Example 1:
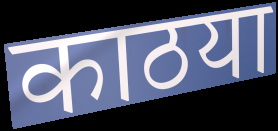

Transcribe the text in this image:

काठया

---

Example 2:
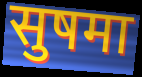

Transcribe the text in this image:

सुषमा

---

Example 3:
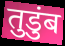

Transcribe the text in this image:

तुडुंब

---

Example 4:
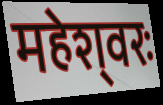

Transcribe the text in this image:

महेश्वरः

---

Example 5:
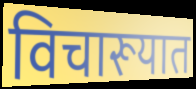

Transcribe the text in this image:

विचारूयात